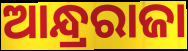
ଆନ୍ଧ୍ରରାଜା